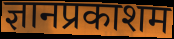
ज्ञानप्रकाशम